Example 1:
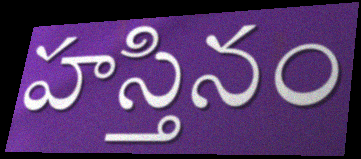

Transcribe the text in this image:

హస్తినం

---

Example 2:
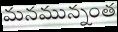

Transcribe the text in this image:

మనమున్నంత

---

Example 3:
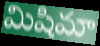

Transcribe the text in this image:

మిషిమా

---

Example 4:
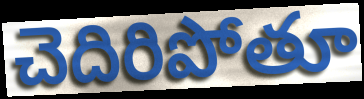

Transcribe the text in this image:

చెదిరిపోతూ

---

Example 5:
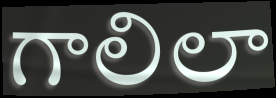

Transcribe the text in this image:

గాలిలా